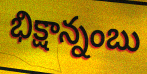
భిక్షాన్నంబు